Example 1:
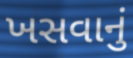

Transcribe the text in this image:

ખસવાનું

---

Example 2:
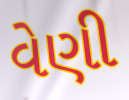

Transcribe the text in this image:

વેણી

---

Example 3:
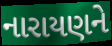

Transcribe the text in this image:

નારાયણને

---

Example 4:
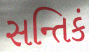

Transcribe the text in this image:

સન્તિકં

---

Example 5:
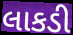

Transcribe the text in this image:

લાકડી